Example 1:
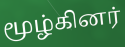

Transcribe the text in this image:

மூழ்கினர்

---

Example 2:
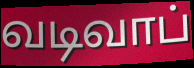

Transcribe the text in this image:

வடிவாப்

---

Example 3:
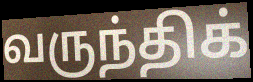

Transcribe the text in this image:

வருந்திக்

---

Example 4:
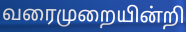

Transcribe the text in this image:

வரைமுறையின்றி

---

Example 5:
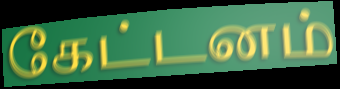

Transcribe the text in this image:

கேட்டனம்